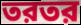
তরতর